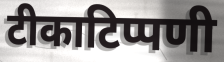
टीकाटिप्पणी